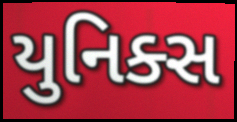
યુનિક્સ